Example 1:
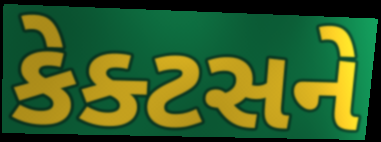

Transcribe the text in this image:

કેક્ટસને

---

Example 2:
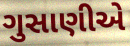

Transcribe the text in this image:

ગુસાણીએ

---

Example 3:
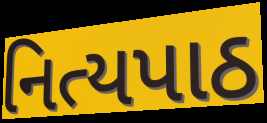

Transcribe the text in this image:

નિત્યપાઠ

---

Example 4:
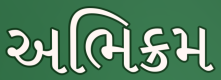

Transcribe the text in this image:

અભિક્રમ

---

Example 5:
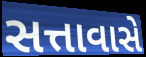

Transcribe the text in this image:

સત્તાવાસે